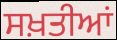
ਸਖ਼ਤੀਆਂ